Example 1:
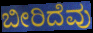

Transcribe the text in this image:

ಬೀರಿದೆವು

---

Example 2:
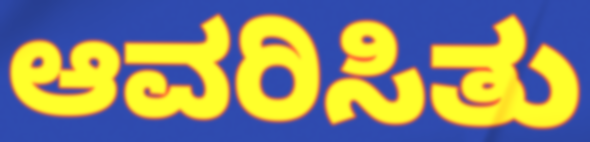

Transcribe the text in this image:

ಆವರಿಸಿತು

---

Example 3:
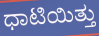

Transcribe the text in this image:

ಧಾಟಿಯಿತ್ತು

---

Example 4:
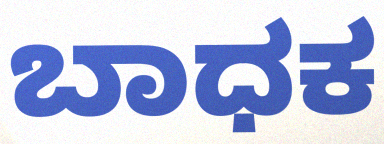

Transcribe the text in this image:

ಬಾಧಕ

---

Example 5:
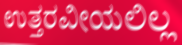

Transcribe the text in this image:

ಉತ್ತರವೀಯಲಿಲ್ಲ